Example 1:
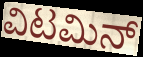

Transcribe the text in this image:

ವಿಟಮಿನ್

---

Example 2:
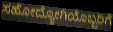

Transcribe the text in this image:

ಸಹೋದ್ಯೋಗಿಯೊಬ್ಬರಿಗೆ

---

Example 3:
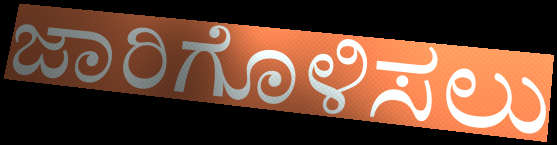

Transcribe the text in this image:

ಜಾರಿಗೊಳಿಸಲು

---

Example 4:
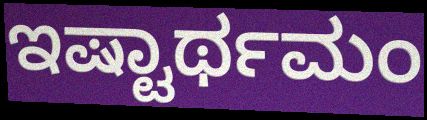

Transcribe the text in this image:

ಇಷ್ಟಾರ್ಥಮಂ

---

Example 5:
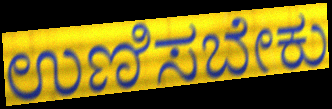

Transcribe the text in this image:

ಉಣಿಸಬೇಕು